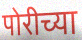
पोरीच्या